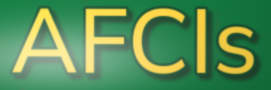
AFCIs